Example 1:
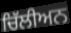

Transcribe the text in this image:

ਚਿੱਲੀਅਨ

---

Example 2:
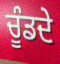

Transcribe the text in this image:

ਚੂੰਡਦੇ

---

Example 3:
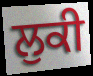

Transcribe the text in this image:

ਲੁਕੀ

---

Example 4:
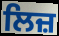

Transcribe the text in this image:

ਲਿਜ਼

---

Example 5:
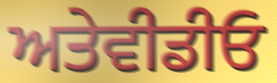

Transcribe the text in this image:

ਅਤੇਵੀਡੀਓ